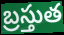
బ్రస్తుత